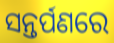
ସନ୍ତର୍ପଣରେ